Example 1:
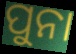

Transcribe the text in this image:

ପୁନା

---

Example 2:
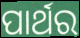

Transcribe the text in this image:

ପାର୍ଥର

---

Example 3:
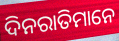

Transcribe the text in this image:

ଦିନରାତିମାନେ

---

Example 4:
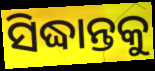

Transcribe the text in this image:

ସିଦ୍ଧାନ୍ତକୁ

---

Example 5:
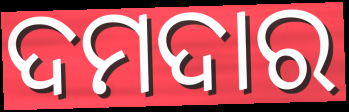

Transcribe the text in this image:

ଦମଦାର